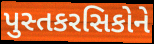
પુસ્તકરસિકોને